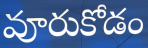
వూరుకోడం